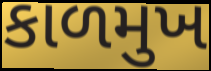
કાળમુખ